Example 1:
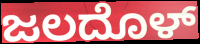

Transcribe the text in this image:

ಜಲದೊಳ್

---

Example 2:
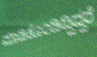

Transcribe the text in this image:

ಮಾಡಿಕೊಂಡಿದ್ದಿದ್ದರೆ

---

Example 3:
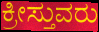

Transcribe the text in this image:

ಕ್ರೀಸ್ತುವರು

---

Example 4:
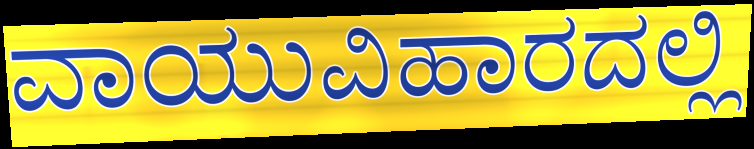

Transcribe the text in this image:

ವಾಯುವಿಹಾರದಲ್ಲಿ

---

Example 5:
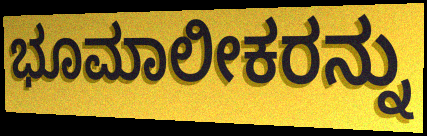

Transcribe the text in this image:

ಭೂಮಾಲೀಕರನ್ನು